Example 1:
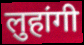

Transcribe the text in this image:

लुहांगी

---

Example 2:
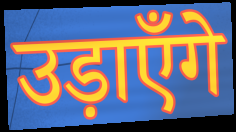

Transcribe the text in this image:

उड़ाएँगे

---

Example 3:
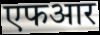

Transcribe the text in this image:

एफआर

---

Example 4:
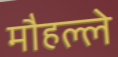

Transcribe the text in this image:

मौहल्ले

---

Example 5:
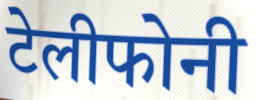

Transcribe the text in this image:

टेलीफोनी